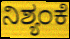
ನಿಶ್ಯಂಕೆ